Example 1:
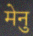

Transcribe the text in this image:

मेनु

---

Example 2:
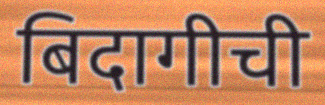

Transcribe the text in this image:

बिदागीची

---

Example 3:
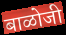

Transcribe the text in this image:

बाळोजी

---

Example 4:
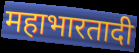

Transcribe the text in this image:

महाभारतादी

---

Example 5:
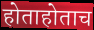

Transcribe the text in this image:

होताहोताच